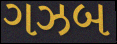
ગઝબ